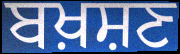
ਬਖ਼ਸ਼ਣ